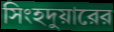
সিংহদুয়ারের